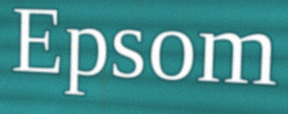
Epsom